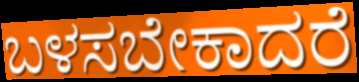
ಬಳಸಬೇಕಾದರೆ